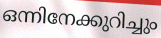
ഒന്നിനേക്കുറിച്ചും